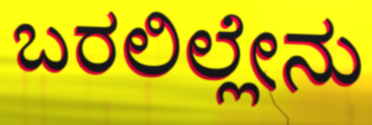
ಬರಲಿಲ್ಲೇನು